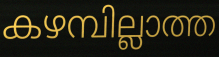
കഴമ്പില്ലാത്ത